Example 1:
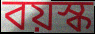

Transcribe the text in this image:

বয়স্ক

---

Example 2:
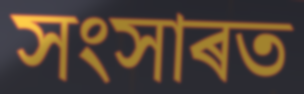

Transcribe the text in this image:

সংসাৰত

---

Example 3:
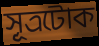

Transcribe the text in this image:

সূত্ৰটোক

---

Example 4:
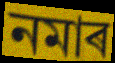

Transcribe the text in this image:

নমাৰ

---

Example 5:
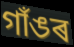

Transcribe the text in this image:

গাঁঙৰ